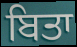
ਬਿਤਾ